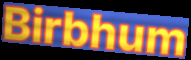
Birbhum